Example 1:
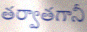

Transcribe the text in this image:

తర్వాతగానీ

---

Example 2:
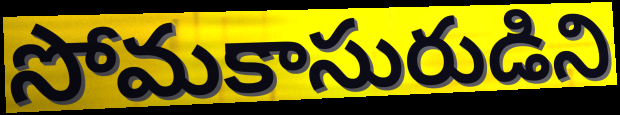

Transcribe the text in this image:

సోమకాసురుడిని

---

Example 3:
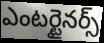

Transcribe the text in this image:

ఎంటర్టైనర్స్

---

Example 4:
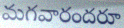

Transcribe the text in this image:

మగవారందరూ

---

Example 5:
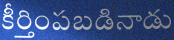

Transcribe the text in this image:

కీర్తింపబడినాడు